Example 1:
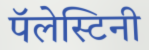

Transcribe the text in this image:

पॅलेस्टिनी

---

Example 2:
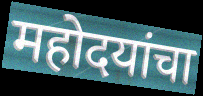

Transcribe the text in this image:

महोदयांचा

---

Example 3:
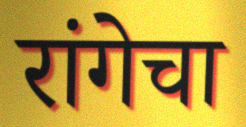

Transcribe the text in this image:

रांगेचा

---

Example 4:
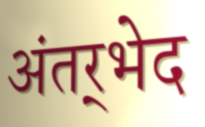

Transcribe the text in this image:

अंतर्भेद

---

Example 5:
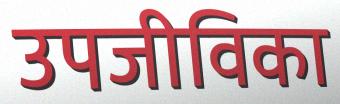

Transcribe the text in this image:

उपजीविका